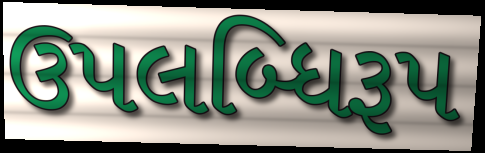
ઉપલબ્ધિરૂપ